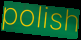
polish